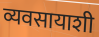
व्यवसायाशी